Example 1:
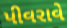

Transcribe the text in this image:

પીવરાવે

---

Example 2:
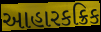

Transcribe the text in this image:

આહારકક્રિક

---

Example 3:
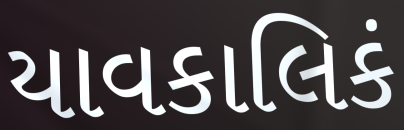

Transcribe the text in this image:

યાવકાલિકં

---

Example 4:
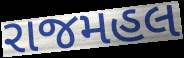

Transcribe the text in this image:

રાજમહલ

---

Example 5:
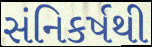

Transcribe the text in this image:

સંનિકર્ષથી